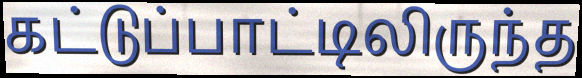
கட்டுப்பாட்டிலிருந்த